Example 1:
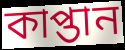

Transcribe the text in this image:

কাপ্তান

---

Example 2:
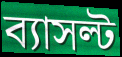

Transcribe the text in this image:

ব্যাসল্ট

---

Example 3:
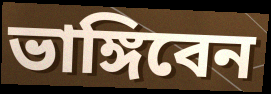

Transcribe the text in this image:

ভাঙ্গিবেন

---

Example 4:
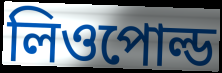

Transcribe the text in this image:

লিওপোল্ড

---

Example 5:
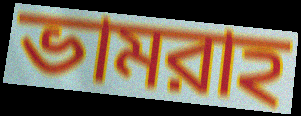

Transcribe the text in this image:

ভামরাহ